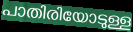
പാതിരിയോടുള്ള